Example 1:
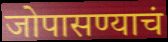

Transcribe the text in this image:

जोपासण्याचं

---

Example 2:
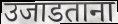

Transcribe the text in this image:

उजाडताना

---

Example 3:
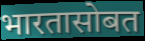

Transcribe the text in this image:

भारतासोबत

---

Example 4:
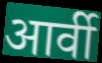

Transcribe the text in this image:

आर्वी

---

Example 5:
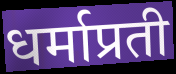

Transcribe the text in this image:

धर्माप्रती